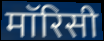
मॉरिसी